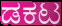
ಡಕಟ